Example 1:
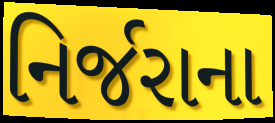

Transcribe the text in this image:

નિર્જરાના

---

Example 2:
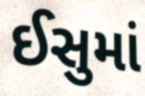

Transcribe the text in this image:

ઈસુમાં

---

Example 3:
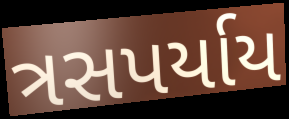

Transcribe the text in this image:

ત્રસપર્યાય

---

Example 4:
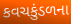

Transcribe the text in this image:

કવચકુંડળના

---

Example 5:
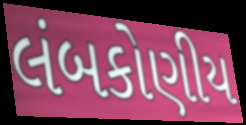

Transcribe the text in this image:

લંબકોણીય